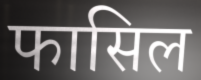
फासिल